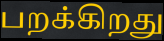
பறக்கிறது